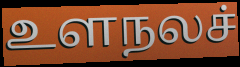
உளநலச்